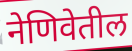
नेणिवेतील